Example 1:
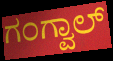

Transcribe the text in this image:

ಗಂಗ್ವಾಲ್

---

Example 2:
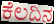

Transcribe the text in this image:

ಕೆಲದಿನ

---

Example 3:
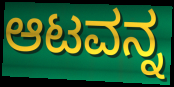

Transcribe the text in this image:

ಆಟವನ್ನ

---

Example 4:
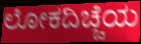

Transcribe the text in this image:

ಲೋಕದಿಚ್ಚೆಯ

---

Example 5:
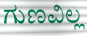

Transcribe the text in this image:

ಗುಣವಿಲ್ಲ